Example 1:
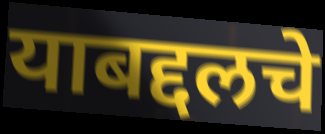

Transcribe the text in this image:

याबद्दलचे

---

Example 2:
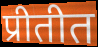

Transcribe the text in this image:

प्रीतीत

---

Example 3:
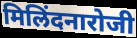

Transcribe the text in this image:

मिलिंदनारोजी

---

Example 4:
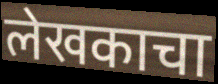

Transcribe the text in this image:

लेखकाचा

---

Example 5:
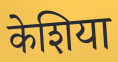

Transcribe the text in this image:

केशिया